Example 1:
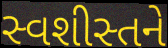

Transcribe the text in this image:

સ્વશીસ્તને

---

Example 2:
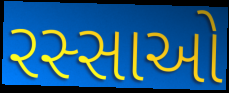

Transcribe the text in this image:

રસ્સાઓ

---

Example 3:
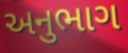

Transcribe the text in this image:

અનુભાગ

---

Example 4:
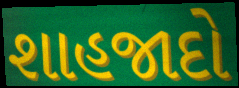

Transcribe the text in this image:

શાહજાદો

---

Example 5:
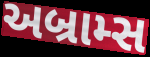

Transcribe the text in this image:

અબ્રામ્સ